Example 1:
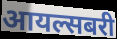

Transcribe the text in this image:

आयल्सबरी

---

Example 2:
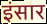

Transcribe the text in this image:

इंसार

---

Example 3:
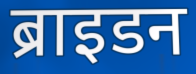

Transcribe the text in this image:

ब्राइडन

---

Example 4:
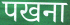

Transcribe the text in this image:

पखना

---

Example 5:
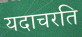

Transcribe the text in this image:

यदाचरति